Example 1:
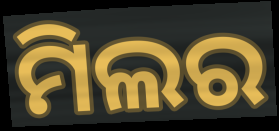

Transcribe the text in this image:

ମିଲର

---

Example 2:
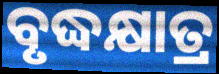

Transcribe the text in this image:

ବୃଦ୍ଧକ୍ଷାତ୍ର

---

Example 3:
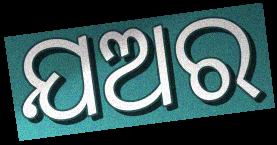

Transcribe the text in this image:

ଯଅର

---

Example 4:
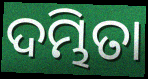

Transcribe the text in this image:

ଦମ୍ଭିତା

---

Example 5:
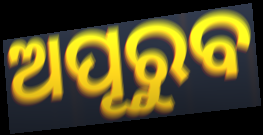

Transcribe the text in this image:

ଅପୂରୁବ